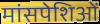
मांसपेशिओं